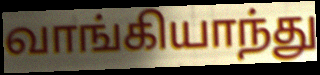
வாங்கியாந்து